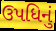
ઉપધિનું